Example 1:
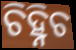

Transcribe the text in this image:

ଚିହ୍ନିଚ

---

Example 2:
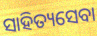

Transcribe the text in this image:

ସାହିତ୍ୟସେବା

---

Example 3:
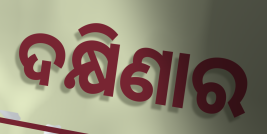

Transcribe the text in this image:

ଦକ୍ଷିଣାର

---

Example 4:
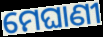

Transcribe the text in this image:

ମେଘାଣୀ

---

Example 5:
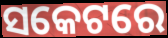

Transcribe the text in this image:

ସକେଟରେ